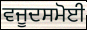
ਵਜੂਦਸਮੋਈ